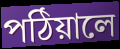
পঠিয়ালে